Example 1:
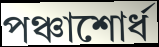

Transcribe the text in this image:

পঞ্চাশোর্ধ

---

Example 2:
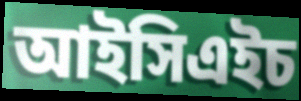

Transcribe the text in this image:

আইসিএইচ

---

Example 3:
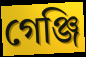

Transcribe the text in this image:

গেঞ্জি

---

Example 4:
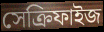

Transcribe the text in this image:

সেক্রিফাইজ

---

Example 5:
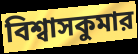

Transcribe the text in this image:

বিশ্বাসকুমার